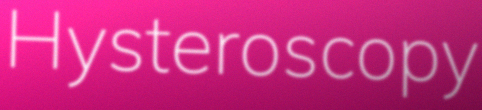
Hysteroscopy